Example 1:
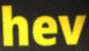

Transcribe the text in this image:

hev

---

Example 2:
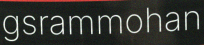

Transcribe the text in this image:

gsrammohan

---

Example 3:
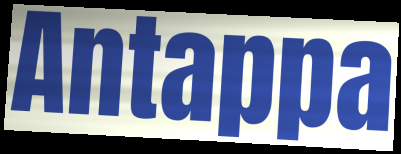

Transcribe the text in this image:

Antappa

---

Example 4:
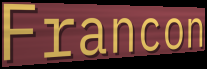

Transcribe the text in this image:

Francon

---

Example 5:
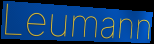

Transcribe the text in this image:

Leumann